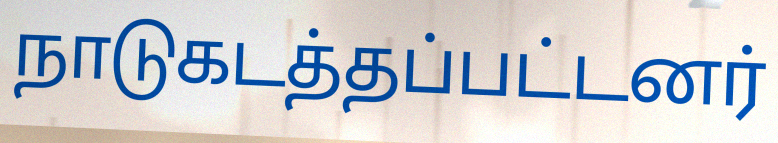
நாடுகடத்தப்பட்டனர்